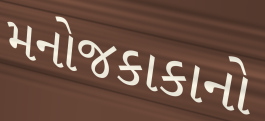
મનોજકાકાનો